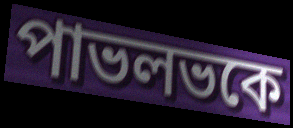
পাভলভকে